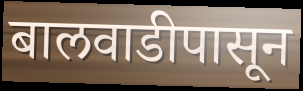
बालवाडीपासून